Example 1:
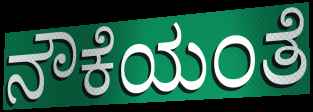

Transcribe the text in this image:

ನೌಕೆಯಂತೆ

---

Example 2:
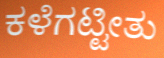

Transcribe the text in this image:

ಕಳೆಗಟ್ಟೀತು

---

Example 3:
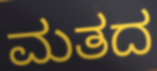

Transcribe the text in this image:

ಮತದ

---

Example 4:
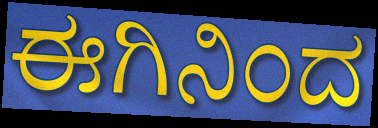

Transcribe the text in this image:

ಈಗಿನಿಂದ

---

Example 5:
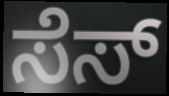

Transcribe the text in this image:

ಸೆಸ್